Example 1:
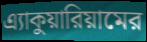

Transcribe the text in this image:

এ্যাকুয়ারিয়ামের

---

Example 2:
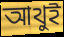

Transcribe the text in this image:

আথুই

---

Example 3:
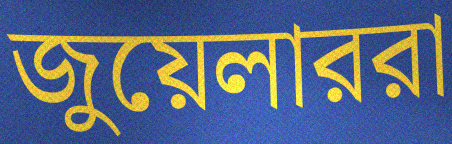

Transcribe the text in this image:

জুয়েলাররা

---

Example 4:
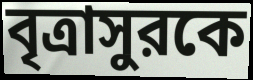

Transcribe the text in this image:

বৃত্রাসুরকে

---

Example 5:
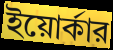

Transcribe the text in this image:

ইয়োর্কার